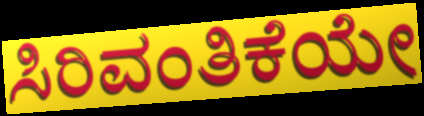
ಸಿರಿವಂತಿಕೆಯೇ